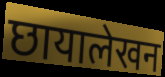
छायालेखन